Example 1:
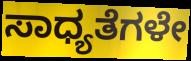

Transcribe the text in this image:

ಸಾಧ್ಯತೆಗಳೇ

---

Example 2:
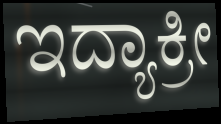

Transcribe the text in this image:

ಇದ್ಯಾಕ್ರೀ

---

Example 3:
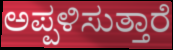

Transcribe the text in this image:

ಅಪ್ಪಳಿಸುತ್ತಾರೆ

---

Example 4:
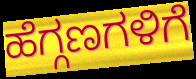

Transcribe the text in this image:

ಹೆಗ್ಗಣಗಳಿಗೆ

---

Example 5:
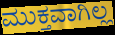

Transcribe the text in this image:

ಮುಕ್ತವಾಗಿಲ್ಲ